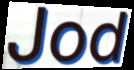
Jod